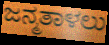
ಜನ್ಮತಾಳಲು